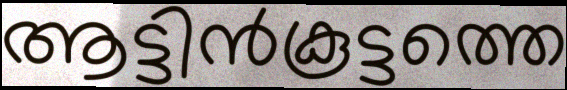
ആട്ടിൻകൂട്ടത്തെ